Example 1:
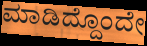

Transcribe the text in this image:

ಮಾಡಿದ್ದೊಂದೇ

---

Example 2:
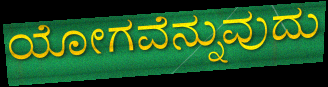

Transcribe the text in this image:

ಯೋಗವೆನ್ನುವುದು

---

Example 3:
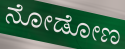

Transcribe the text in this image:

ನೋಡೋಣ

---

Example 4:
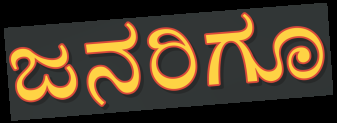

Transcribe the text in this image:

ಜನರಿಗೂ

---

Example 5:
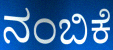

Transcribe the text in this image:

ನಂಬಿಕೆ